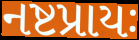
નષ્ટપ્રાયઃ